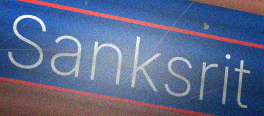
Sanksrit